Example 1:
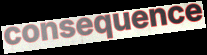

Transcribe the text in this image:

consequence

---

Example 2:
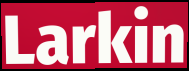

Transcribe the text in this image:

Larkin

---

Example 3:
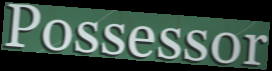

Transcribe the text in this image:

Possessor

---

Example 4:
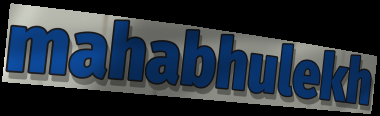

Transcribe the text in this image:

mahabhulekh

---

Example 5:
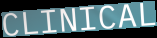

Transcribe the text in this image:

CLINICAL